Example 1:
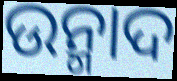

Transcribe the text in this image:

ଉନ୍ମାଦ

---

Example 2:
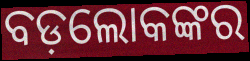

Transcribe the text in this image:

ବଡ଼ଲୋକଙ୍କର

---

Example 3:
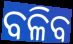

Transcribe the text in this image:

ବଳିବ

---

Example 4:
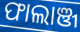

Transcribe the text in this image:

ଫାଲାଞ୍ଜ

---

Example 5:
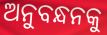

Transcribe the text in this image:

ଅନୁବନ୍ଧନକୁ